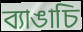
ব্যাঙাচি